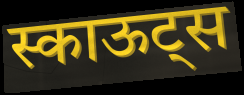
स्काऊट्स